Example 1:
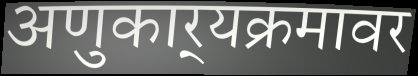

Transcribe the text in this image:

अणुकार्यक्रमावर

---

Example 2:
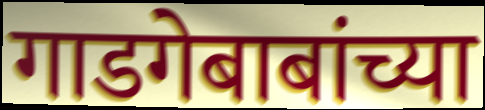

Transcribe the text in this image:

गाडगेबाबांच्या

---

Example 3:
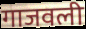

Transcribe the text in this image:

गाजवली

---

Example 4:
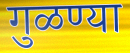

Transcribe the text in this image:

गुळण्या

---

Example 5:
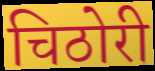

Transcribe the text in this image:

चिठोरी